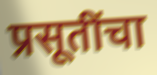
प्रसूतींचा